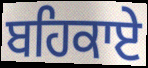
ਬਹਿਕਾਏ